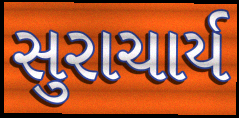
સુરાચાર્ય